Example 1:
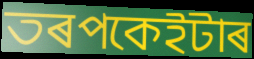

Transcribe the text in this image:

তৰপকেইটাৰ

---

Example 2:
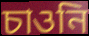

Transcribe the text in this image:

চাওনি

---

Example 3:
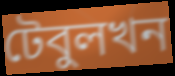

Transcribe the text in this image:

টেবুলখন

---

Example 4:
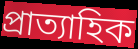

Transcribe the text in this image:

প্ৰাত্যাহিক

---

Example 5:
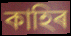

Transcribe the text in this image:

কাহিৰ